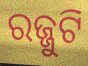
ରଜ୍ଜୁଟି